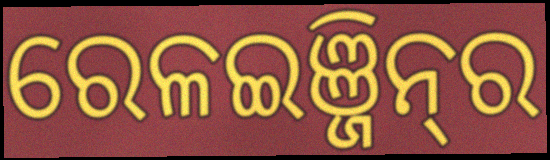
ରେଳଇଞ୍ଜିନ୍‌ର